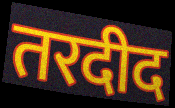
तरदीद